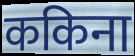
ककिना